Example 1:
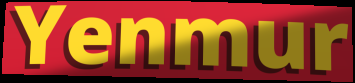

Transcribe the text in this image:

Yenmur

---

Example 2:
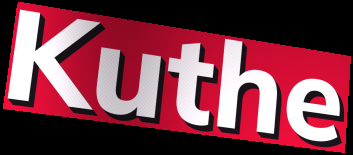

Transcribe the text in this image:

Kuthe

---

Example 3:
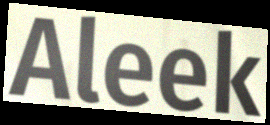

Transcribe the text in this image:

Aleek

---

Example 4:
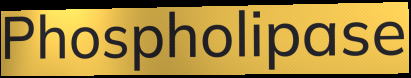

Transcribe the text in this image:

Phospholipase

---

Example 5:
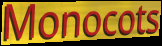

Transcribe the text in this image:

Monocots